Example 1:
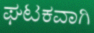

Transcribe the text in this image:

ಘಟಕವಾಗಿ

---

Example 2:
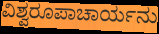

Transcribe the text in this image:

ವಿಶ್ವರೂಪಾಚಾರ್ಯನು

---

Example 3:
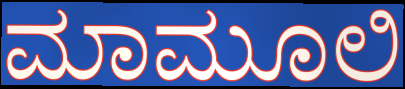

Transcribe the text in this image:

ಮಾಮೂಲಿ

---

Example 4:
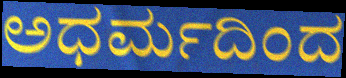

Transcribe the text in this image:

ಅಧರ್ಮದಿಂದ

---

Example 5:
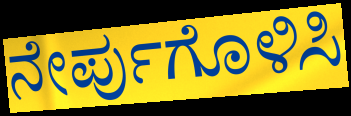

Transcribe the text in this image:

ನೇರ್ಪುಗೊಳಿಸಿ